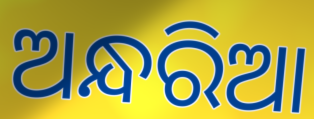
ଅନ୍ଧରିଆ